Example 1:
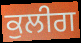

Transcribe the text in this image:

ਕੁਲੀਗ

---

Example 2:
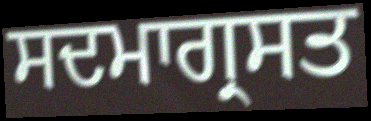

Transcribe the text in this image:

ਸਦਮਾਗ੍ਰਸਤ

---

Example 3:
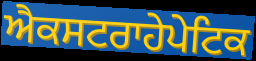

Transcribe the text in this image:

ਐਕਸਟਰਾਹੇਪੇਟਿਕ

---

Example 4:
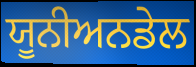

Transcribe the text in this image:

ਯੂਨੀਅਨਡੇਲ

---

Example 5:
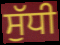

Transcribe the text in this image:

ਸੁੱਧੀ